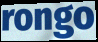
rongo